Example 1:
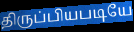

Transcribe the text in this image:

திருப்பியபடியே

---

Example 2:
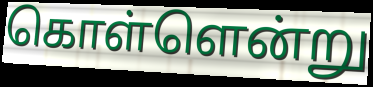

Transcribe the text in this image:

கொள்ளென்று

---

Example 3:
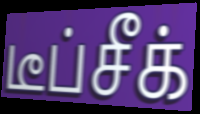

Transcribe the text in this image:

டீப்சீக்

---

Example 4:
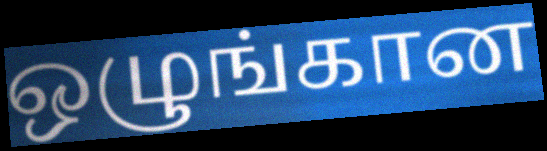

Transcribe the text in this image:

ஒழுங்கான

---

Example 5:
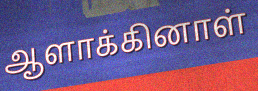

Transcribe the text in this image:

ஆளாக்கினாள்